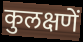
कुलक्षणें